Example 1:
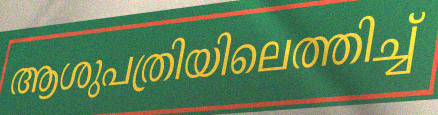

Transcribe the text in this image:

ആശുപത്രിയിലെത്തിച്ച്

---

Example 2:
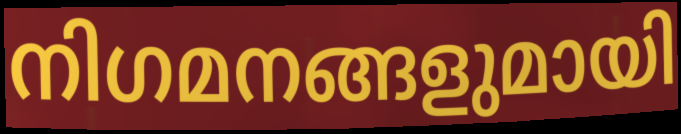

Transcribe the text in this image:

നിഗമനങ്ങളുമായി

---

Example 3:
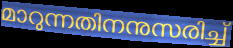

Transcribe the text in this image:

മാറുന്നതിനനുസരിച്ച്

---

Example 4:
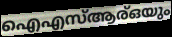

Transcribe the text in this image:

ഐഎസ്ആര്ഒയും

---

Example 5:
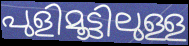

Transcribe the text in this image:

പുളിമൂട്ടിലുള്ള